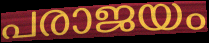
പരാജയം